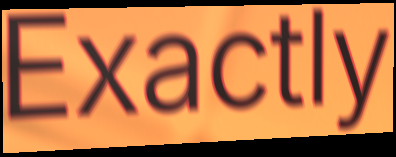
Exactly